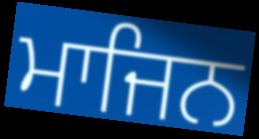
ਮਾਜਿਨ